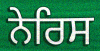
ਨੇਰਿਸ